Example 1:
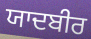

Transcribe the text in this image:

ਯਾਦਬੀਰ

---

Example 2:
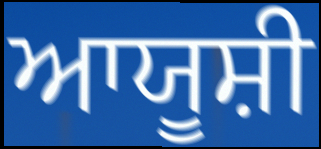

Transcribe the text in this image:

ਆਯੂਸ਼ੀ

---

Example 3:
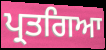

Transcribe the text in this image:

ਪ੍ਰਤਗਿਆ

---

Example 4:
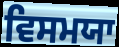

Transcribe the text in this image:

ਵਿਸਮਯਾ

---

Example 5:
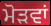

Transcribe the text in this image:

ਮੋੜਵਾਂ